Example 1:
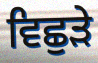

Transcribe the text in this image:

ਵਿਛੁੜੇ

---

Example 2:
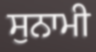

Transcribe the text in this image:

ਸੁਨਾਮੀ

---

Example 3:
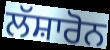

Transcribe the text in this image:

ਲੱਸ਼ਾਰੋਨ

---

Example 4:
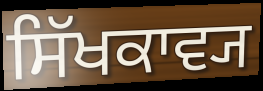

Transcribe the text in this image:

ਸਿੱਖਕਾਵ੍ਯ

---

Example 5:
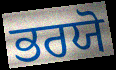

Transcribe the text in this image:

ਭਰਯੋ